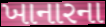
ખાનારના